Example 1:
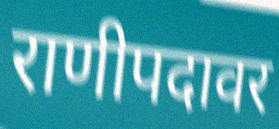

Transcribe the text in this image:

राणीपदावर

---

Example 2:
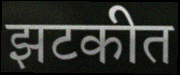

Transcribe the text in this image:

झटकीत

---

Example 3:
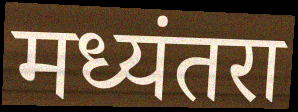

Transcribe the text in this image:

मध्यंतरा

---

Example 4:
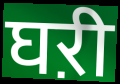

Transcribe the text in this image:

घऱी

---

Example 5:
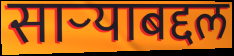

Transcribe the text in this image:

साऱ्याबद्दल